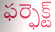
ఫర్ఫెక్ట్